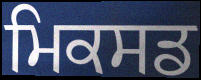
ਮਿਕਸਡ